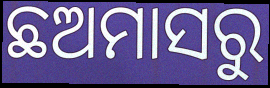
ଛଅମାସରୁ